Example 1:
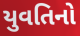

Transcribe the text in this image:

યુવતિનો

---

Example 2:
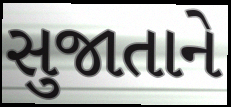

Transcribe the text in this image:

સુજાતાને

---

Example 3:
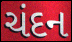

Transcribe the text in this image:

ચંદન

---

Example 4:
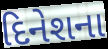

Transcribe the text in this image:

દિનેશના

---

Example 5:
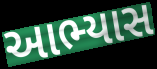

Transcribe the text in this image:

આભ્યાસ